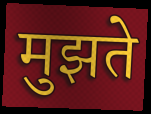
मुझते